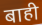
बाही